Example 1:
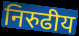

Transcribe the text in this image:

निरुढीय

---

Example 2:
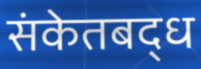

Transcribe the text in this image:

संकेतबद्ध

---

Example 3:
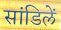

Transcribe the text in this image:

सांडिलें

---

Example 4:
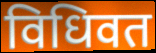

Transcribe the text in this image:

विधिवत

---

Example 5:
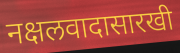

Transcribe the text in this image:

नक्षलवादासारखी